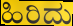
ಹಿರಿದು